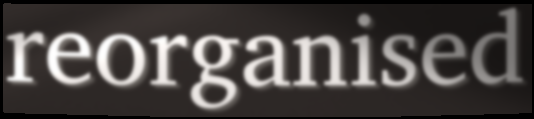
reorganised